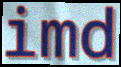
imd